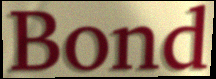
Bond